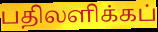
பதிலளிக்கப்